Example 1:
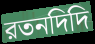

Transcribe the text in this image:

রতনদিদি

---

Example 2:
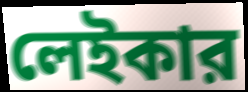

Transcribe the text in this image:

লেইকার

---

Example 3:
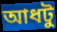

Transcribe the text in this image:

আধটু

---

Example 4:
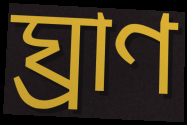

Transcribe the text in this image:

ঘ্রাণ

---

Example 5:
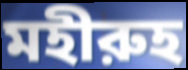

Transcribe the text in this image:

মহীরুহ